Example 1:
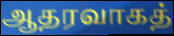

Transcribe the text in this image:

ஆதரவாகத்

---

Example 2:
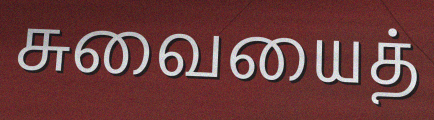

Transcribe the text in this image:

சுவையைத்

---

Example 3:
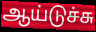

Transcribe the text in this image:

ஆய்டுச்சு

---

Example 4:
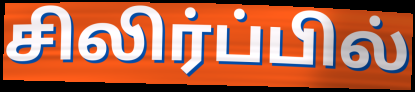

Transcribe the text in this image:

சிலிர்ப்பில்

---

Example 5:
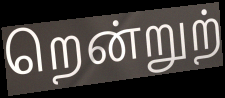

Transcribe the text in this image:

றென்றுற்